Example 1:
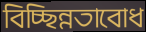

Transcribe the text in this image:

বিচ্ছিন্নতাবোধ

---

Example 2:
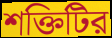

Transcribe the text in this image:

শক্তিটির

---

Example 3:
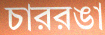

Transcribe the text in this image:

চাররঙা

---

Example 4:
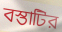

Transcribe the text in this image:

বস্তাটির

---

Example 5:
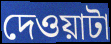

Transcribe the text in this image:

দেওয়াটা